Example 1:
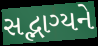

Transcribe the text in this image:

સદ્ભાગ્યને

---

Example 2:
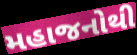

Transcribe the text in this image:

મહાજનોથી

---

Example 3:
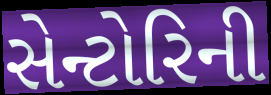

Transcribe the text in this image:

સેન્ટોરિની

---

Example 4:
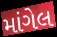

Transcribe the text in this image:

માંગેલ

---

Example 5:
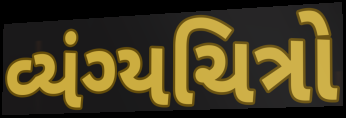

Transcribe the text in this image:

વ્યંગ્યચિત્રો